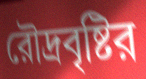
রৌদ্রবৃষ্টির